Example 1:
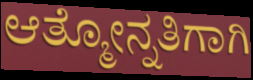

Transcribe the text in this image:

ಆತ್ಮೋನ್ನತಿಗಾಗಿ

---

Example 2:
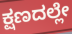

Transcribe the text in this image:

ಕ್ಷಣದಲ್ಲೇ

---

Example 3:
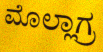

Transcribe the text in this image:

ಮೊಲ್ಲಾಗ್ರ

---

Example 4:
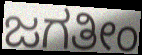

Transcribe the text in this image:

ಜಗತೀಂ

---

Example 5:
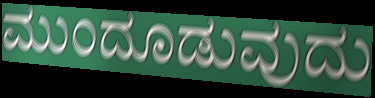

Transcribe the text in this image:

ಮುಂದೂಡುವುದು